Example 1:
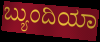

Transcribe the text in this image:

ಬ್ಯುಂದಿಯಾ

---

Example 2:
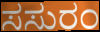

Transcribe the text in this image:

ಸಸುರಂ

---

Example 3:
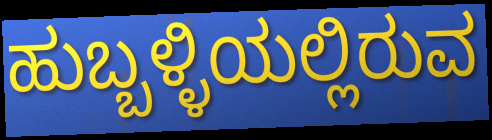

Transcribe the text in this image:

ಹುಬ್ಬಳ್ಳಿಯಲ್ಲಿರುವ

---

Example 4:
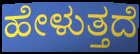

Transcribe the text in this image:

ಹೇಳುತ್ತದೆ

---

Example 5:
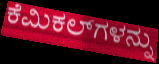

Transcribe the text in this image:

ಕೆಮಿಕಲ್‌ಗಳನ್ನು